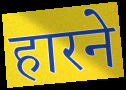
हारने